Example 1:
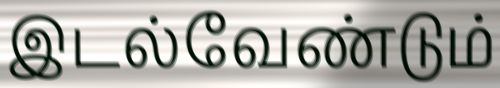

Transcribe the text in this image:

இடல்வேண்டும்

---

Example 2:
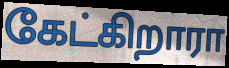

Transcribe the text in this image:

கேட்கிறாரா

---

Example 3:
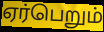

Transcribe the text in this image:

ஏர்பெறும்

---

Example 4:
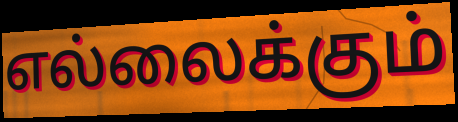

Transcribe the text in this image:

எல்லைக்கும்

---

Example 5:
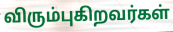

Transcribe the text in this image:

விரும்புகிறவர்கள்